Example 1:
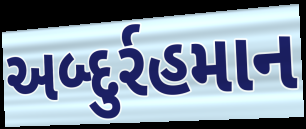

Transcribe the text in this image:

અબ્દુર્રહમાન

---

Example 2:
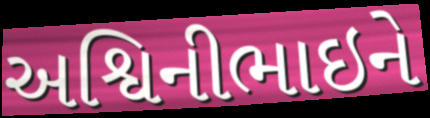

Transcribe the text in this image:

અશ્વિનીભાઇને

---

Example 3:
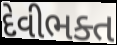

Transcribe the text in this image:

દેવીભક્ત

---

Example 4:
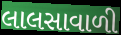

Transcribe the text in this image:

લાલસાવાળી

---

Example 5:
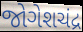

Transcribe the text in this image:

જોગેશચંદ્ર